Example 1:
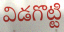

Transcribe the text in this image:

విడగొట్టి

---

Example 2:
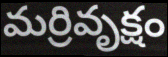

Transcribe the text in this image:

మర్రివృక్షం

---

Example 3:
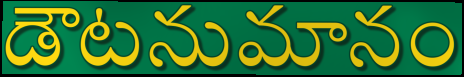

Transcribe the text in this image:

డౌటనుమానం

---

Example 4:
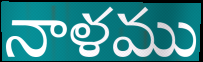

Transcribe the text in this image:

నాళము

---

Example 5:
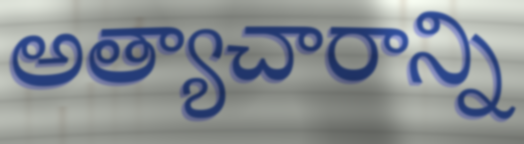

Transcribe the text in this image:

అత్యాచారాన్ని